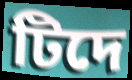
টিদে